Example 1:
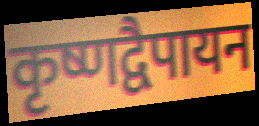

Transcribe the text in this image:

कृष्णद्वैपायन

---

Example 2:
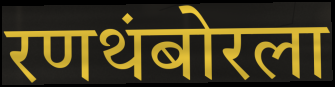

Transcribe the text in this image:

रणथंबोरला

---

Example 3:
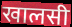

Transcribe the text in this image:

खालसी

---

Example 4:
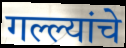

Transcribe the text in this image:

गल्ल्यांचे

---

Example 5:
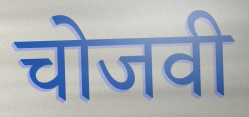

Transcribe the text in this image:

चोजवी